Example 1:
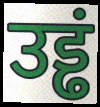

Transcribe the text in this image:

उड्ढं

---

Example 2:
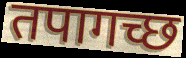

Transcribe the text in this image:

तपागच्छ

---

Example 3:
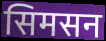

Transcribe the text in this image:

सिमसन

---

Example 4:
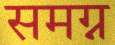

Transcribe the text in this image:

समग्न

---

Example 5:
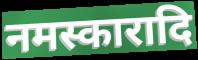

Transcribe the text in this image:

नमस्कारादि